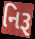
નિરૂ